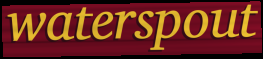
waterspout